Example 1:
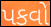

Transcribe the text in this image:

પકવો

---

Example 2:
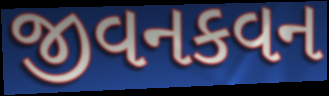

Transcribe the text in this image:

જીવનકવન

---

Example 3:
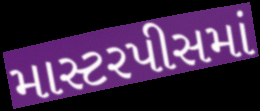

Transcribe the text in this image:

માસ્ટરપીસમાં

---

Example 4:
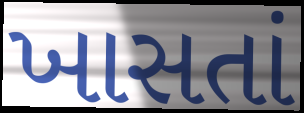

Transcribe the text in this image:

ખાસતાં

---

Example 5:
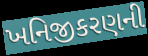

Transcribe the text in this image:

ખનિજીકરણની